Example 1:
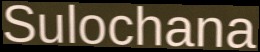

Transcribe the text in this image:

Sulochana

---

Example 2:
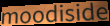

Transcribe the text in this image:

moodiside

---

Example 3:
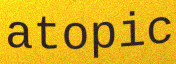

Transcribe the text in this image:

atopic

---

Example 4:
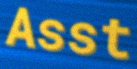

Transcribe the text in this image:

Asst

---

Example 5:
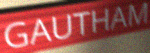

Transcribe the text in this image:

GAUTHAM